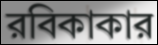
রবিকাকার